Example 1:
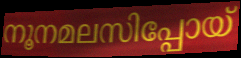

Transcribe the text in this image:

നൂനമലസിപ്പോയ്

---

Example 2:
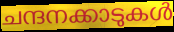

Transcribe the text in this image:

ചന്ദനക്കാടുകൾ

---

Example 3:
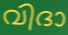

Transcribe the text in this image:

വിദാ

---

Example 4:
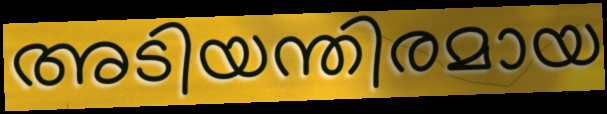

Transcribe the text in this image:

അടിയന്തിരമായ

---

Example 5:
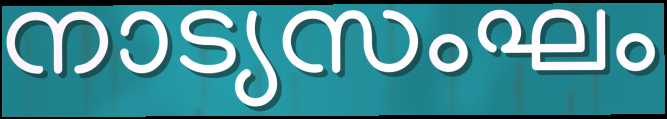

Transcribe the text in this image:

നാട്യസംഘം